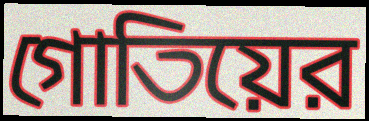
গোতিয়ের